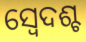
ସ୍ବେଦଶ୍ଚ